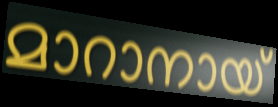
മാറാനായ്